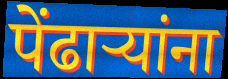
पेंढाऱ्यांना